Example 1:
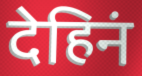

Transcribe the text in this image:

देहिनं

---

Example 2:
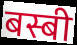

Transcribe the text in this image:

बस्बी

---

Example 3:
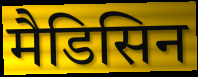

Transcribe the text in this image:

मैडिसिन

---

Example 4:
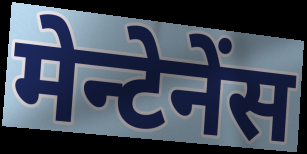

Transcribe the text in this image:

मेन्टेनेंस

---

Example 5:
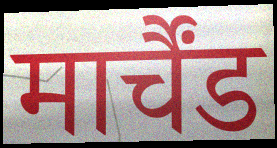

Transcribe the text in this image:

मार्चैंड